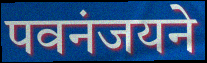
पवनंजयने